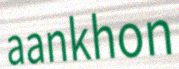
aankhon